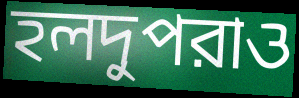
হলদুপরাও